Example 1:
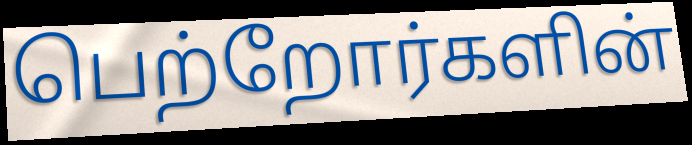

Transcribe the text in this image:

பெற்றோர்களின்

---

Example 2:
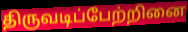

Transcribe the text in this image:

திருவடிப்பேற்றினை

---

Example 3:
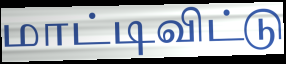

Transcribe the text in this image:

மாட்டிவிட்டு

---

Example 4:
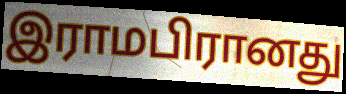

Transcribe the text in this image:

இராமபிரானது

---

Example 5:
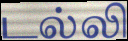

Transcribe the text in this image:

டல்லி